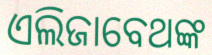
ଏଲିଜାବେଥଙ୍କ